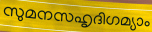
സുമനസഹൃദിഗമ്യാം